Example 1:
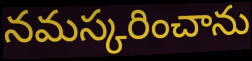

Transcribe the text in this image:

నమస్కరించాను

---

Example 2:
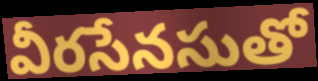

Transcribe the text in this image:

వీరసేనసుతో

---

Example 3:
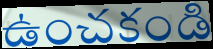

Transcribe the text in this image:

ఉంచకండి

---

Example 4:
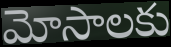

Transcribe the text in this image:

మోసాలకు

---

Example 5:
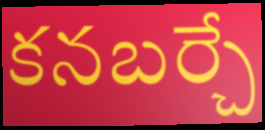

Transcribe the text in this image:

కనబర్చే